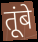
तूंबे